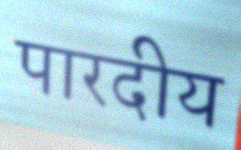
पारदीय